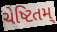
ચેષ્ટિતમ્